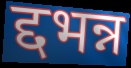
द्दभन्न